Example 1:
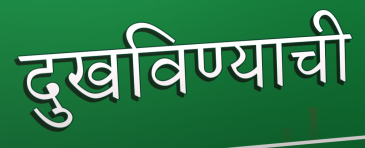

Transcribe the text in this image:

दुखविण्याची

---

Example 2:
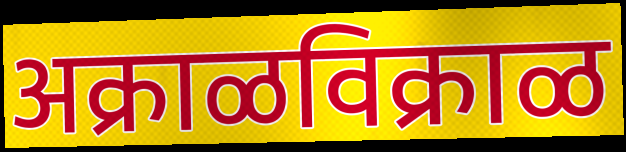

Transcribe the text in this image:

अक्राळविक्राळ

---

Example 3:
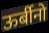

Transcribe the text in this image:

ऊर्बीनो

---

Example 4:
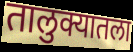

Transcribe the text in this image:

तालुक्यातला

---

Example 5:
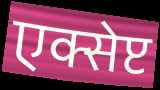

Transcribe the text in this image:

एक्सेप्ट